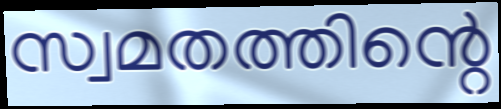
സ്വമതത്തിന്റെ